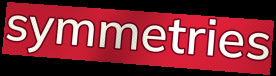
symmetries